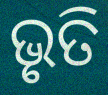
ଭୃତି